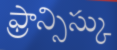
ఫ్రాన్సిస్కు